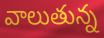
వాలుతున్న